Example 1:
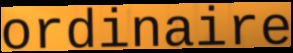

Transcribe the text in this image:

ordinaire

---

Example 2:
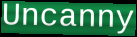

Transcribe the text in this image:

Uncanny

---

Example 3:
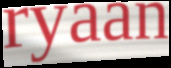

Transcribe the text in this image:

ryaan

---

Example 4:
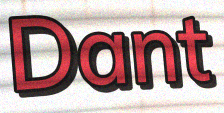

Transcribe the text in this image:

Dant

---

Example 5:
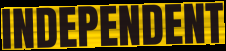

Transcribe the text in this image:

INDEPENDENT